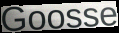
Goosse